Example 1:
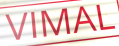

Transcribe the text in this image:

VIMAL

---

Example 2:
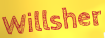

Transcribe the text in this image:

Willsher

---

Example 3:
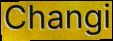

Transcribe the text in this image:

Changi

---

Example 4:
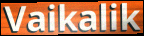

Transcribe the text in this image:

Vaikalik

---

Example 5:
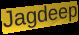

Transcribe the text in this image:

Jagdeep